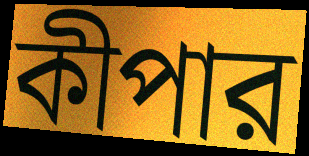
কীপার